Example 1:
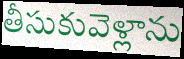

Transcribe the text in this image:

తీసుకువెళ్లాను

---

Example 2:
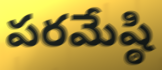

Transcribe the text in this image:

పరమేష్ఠి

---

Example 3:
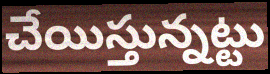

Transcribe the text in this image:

చేయిస్తున్నట్టు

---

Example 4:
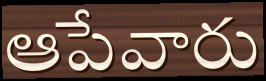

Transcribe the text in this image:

ఆపేవారు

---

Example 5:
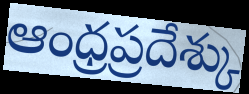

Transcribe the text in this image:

ఆంధ్రప్రదేశ్కు